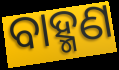
ବାହ୍ମଣ